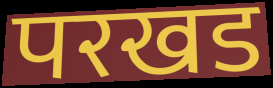
परखड